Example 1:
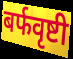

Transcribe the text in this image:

बर्फवृष्टी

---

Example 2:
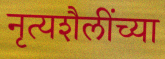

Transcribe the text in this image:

नृत्यशैलींच्या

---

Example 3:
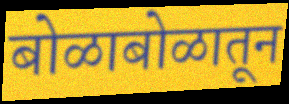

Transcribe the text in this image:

बोळाबोळातून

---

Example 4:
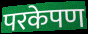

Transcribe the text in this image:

परकेपण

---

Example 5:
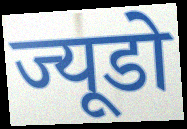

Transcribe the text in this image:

ज्यूडो